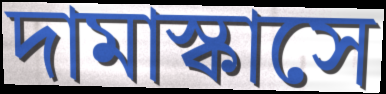
দামাস্কাসে